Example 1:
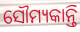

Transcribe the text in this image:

ସୌମ୍ୟକାନ୍ତି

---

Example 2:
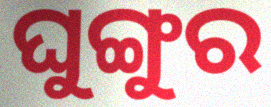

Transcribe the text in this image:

ଘୁଙ୍ଗୁର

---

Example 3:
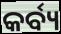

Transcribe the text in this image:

କର୍ବ୍ୟ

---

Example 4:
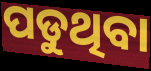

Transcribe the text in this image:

ପଡୁଥିବା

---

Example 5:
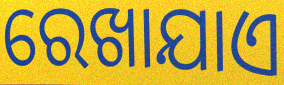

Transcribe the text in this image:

ରେଖାଯାଏ